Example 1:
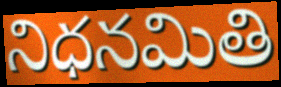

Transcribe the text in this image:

నిధనమితి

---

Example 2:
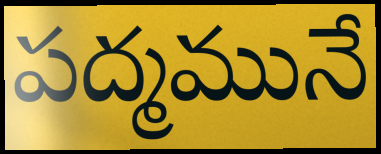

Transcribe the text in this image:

పద్మమునే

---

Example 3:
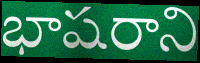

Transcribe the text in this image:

భాషరాని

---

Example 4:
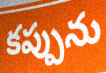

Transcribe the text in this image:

కప్పును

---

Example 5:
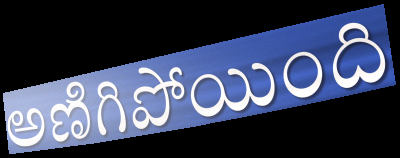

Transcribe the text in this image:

అణిగిపోయింది